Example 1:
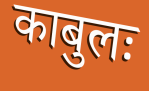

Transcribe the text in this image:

काबुलः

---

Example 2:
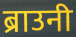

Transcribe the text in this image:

ब्राउनी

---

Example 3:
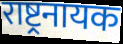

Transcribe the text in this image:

राष्ट्रनायक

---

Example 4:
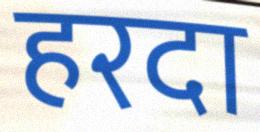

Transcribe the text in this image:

हरदा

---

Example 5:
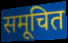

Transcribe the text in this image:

समूचित